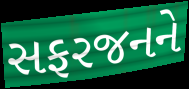
સફરજનને